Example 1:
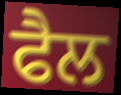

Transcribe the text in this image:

ਫੈਲ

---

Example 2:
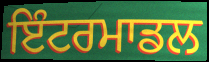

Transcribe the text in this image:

ਇੰਟਰਮਾਡਲ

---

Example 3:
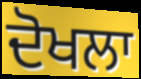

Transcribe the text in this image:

ਦੋਖਲਾ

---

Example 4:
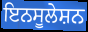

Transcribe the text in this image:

ਇਨਸੂਲੇਸ਼ਨ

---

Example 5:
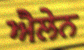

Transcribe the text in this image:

ਐਲੇਨ